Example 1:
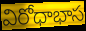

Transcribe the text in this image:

విరోధాభాస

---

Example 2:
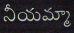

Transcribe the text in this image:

నీయమ్మా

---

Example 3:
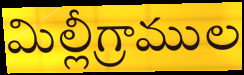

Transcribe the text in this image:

మిల్లీగ్రాముల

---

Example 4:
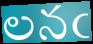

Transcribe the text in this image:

లనఁ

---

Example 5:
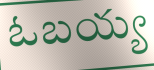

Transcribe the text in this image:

ఓబయ్య